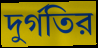
দুর্গতির